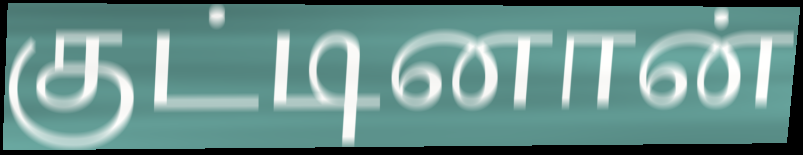
குட்டினான்